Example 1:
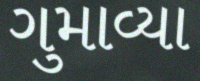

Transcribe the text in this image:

ગુમાવ્યા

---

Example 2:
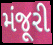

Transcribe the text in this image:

મંજૂરી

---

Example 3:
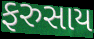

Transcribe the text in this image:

ફરુસાય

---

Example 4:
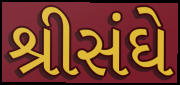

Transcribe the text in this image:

શ્રીસંઘે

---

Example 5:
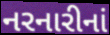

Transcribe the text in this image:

નરનારીનાં